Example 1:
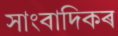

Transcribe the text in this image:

সাংবাদিকৰ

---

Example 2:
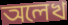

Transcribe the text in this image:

অলেখ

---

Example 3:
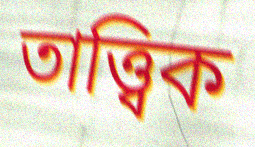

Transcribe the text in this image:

তাত্ত্বিক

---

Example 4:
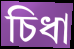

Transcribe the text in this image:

চিধা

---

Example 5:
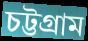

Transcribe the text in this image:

চট্টগ্ৰাম